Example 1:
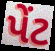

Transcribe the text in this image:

પેંટ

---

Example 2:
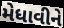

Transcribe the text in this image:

મેધાવીને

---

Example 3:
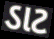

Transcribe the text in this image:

ડાટ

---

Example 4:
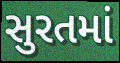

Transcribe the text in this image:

સુરતમાં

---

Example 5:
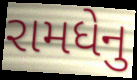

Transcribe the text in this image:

રામધેનુ